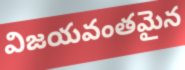
విజయవంతమైన